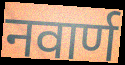
नवार्ण